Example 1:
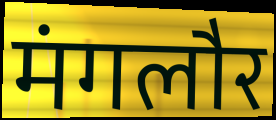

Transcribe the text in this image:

मंगलौर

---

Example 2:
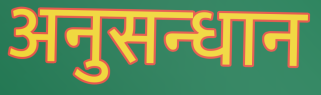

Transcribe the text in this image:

अनुसन्धान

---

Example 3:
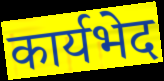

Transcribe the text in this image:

कार्यभेद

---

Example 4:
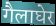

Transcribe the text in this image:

गैलाघेर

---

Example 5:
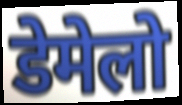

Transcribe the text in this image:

डेमेलो